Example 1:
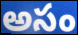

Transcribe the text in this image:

అసం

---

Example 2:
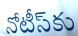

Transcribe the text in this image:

నోటీస్‌కు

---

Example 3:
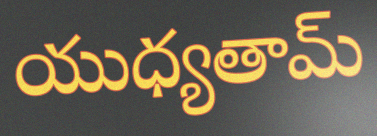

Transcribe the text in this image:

యుధ్యతామ్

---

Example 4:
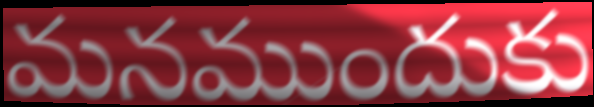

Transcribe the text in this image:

మనముందుకు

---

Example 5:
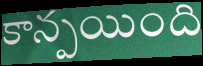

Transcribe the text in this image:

కాన్పయింది